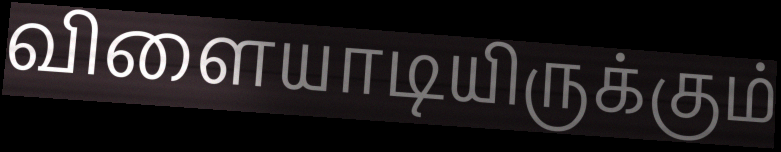
விளையாடியிருக்கும்